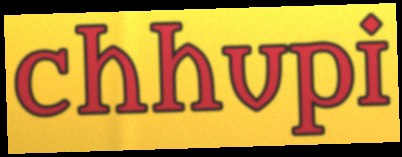
chhupi